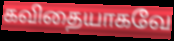
கவிதையாகவே